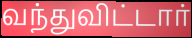
வந்துவிட்டார்